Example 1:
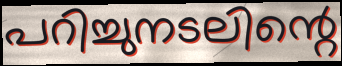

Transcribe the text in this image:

പറിച്ചുനടലിന്റെ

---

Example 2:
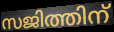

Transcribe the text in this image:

സജിത്തിന്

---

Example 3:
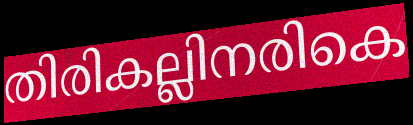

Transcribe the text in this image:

തിരികല്ലിനരികെ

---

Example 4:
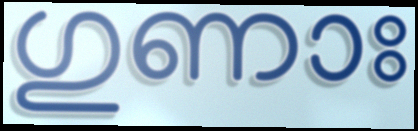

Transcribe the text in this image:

ഗുണാഃ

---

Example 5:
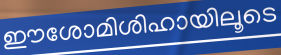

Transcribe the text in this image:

ഈശോമിശിഹായിലൂടെ